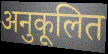
अनुकूलित